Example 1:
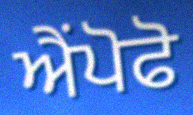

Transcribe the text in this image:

ਐਂਪੋਫੋ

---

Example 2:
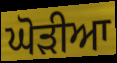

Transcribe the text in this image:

ਘੋੜੀਆ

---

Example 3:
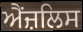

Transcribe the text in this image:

ਐਂਜ਼ਲਿਸ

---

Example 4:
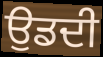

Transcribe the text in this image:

ਉਡਦੀ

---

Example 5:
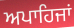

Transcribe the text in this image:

ਅਪਾਹਿਜਾਂ